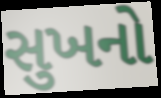
સુખનો